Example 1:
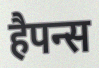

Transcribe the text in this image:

हैपन्स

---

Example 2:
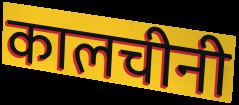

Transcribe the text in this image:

कालचीनी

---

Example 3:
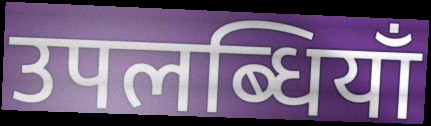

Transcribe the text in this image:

उपलब्धियाँ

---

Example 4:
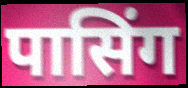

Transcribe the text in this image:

पासिंग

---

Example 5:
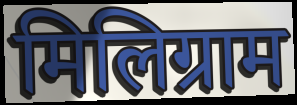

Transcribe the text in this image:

मिलिग्राम